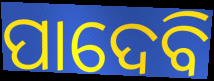
ପାଦେବି